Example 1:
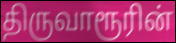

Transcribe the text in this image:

திருவாரூரின்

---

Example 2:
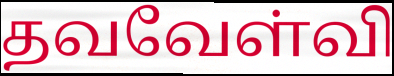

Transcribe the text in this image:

தவவேள்வி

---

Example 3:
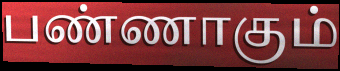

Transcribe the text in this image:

பண்ணாகும்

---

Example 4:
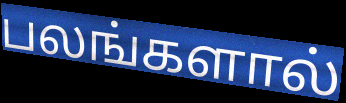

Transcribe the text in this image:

பலங்களால்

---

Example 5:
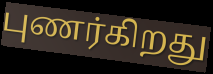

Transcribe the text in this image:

புணர்கிறது